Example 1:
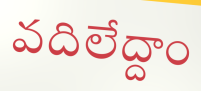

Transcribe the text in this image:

వదిలేద్దాం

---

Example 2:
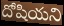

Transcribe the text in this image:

దోషియని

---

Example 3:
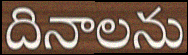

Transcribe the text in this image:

దినాలను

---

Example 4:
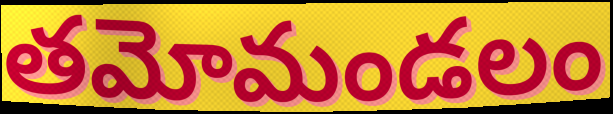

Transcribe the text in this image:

తమోమండలం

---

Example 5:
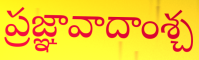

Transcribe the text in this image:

ప్రజ్ఞావాదాంశ్చ